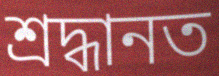
শ্রদ্ধানত